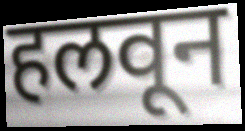
हलवून